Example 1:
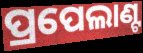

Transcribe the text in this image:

ପ୍ରପେଲାଣ୍ଟ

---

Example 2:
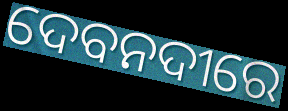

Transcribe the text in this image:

ଦେବନଦୀରେ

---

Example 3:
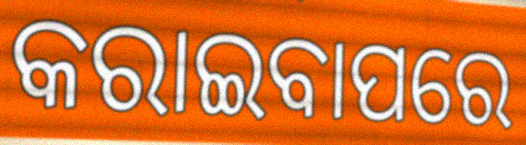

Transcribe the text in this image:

କରାଇବାପରେ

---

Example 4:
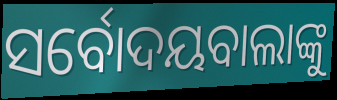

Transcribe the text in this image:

ସର୍ବୋଦୟବାଲାଙ୍କୁ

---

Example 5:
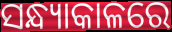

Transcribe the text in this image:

ସନ୍ଧ୍ୟାକାଳରେ